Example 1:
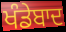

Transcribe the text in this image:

ਖੰਡੇਬਾਦ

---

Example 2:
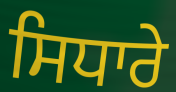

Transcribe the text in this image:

ਸਿਧਾਰੇ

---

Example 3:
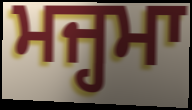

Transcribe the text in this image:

ਮਜ੍ਹਮਾ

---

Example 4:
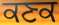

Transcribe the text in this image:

ਕਣਕ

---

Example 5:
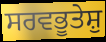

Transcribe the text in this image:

ਸਰਵਭੂਤੇਸ਼ੁ